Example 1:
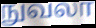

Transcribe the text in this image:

நுவலா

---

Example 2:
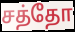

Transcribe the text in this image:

சத்தோ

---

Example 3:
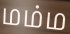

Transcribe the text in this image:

மம்ம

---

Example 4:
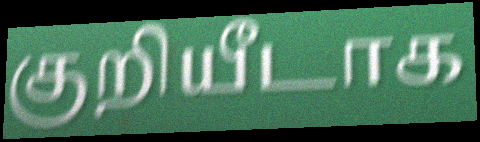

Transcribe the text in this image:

குறியீடாக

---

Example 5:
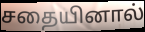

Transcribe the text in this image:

சதையினால்